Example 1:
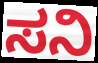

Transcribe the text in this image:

ಸನಿ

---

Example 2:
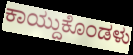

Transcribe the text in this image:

ಕಾಯ್ದುಕೊಂಡಳು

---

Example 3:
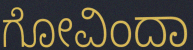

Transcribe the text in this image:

ಗೋವಿಂದಾ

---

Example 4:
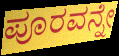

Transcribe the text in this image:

ಪೂರವನ್ನೇ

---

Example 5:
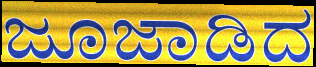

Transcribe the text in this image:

ಜೂಜಾಡಿದ